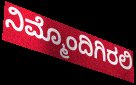
ನಿಮ್ಮೊಂದಿಗಿರಲಿ